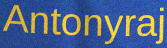
Antonyraj